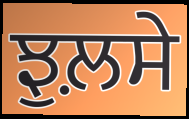
ਝੁਲ਼ਸੇ